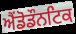
ਐਂਡੋਡੌਨਟਿਕ